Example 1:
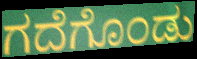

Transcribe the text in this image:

ಗದೆಗೊಂಡು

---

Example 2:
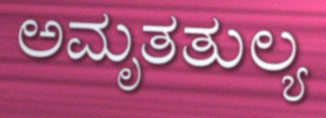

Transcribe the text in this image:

ಅಮೃತತುಲ್ಯ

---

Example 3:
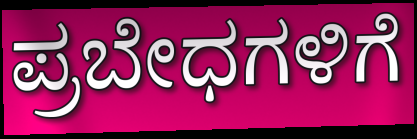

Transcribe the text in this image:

ಪ್ರಬೇಧಗಳಿಗೆ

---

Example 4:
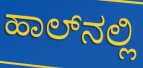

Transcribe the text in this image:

ಹಾಲ್‌ನಲ್ಲಿ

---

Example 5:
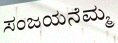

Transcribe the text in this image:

ಸಂಜಯನೆಮ್ಮ